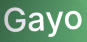
Gayo